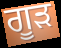
ਗੂੜ